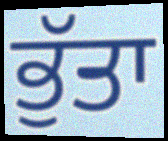
ਭੁੱਤਾ